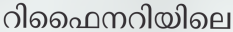
റിഫൈനറിയിലെ